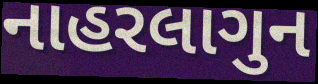
નાહરલાગુન